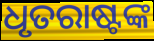
ଧୃତରାଷ୍ଟଙ୍କ